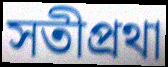
সতীপ্রথা